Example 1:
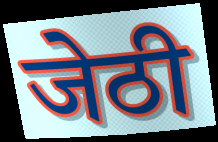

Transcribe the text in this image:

जेठी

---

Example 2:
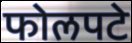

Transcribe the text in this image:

फोलपटे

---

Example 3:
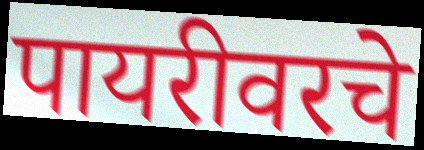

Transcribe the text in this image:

पायरीवरचे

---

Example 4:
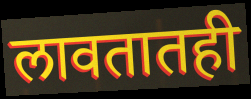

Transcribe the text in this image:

लावतातही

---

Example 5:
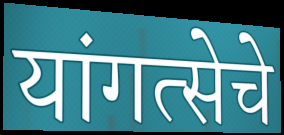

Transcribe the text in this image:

यांगत्सेचे